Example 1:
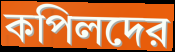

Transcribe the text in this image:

কপিলদের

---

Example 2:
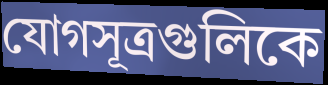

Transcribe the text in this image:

যোগসূত্রগুলিকে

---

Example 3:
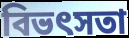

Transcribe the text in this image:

বিভৎসতা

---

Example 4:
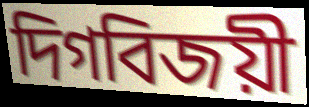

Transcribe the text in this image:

দিগবিজয়ী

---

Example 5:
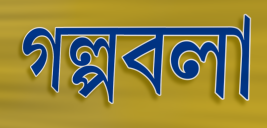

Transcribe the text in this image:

গল্পবলা